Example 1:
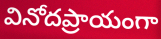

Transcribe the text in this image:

వినోదప్రాయంగా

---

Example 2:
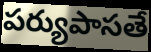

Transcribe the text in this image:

పర్యుపాసతే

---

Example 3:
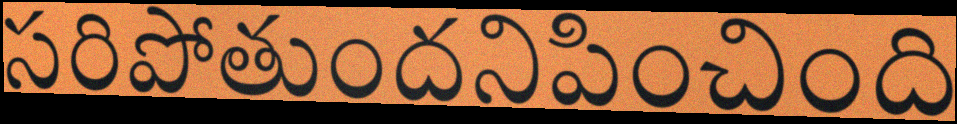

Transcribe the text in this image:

సరిపోతుందనిపించింది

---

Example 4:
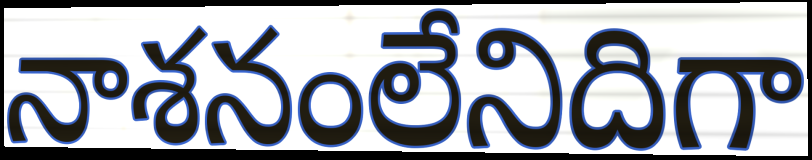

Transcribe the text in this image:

నాశనంలేనిదిగా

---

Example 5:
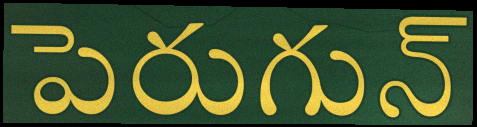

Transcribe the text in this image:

పెరుగున్